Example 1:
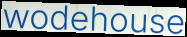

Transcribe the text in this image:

wodehouse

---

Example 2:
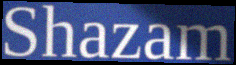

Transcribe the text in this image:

Shazam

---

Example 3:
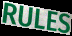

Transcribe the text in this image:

RULES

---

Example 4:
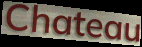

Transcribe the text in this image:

Chateau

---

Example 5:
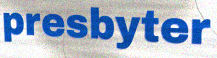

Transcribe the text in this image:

presbyter